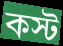
কস্ট